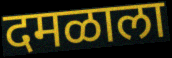
दमळाला